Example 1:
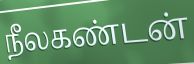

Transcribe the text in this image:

நீலகண்டன்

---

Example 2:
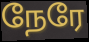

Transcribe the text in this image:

நேரே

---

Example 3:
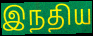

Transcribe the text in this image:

இநதிய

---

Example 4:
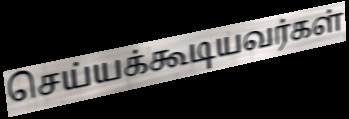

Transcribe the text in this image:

செய்யக்கூடியவர்கள்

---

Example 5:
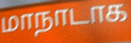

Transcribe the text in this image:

மாநாடாக